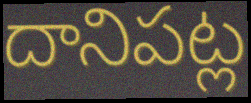
దానిపట్ల